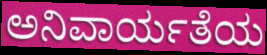
ಅನಿವಾರ್ಯತೆಯ